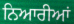
ਨਿਆਰੀਆਂ